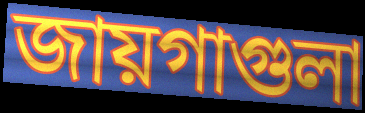
জায়গাগুলা